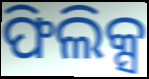
ଫିଲିକ୍ସ